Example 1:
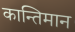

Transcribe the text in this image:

कान्तिमान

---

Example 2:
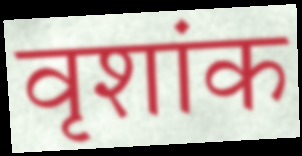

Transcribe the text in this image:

वृशांक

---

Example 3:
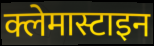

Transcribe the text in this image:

क्लेमास्टाइन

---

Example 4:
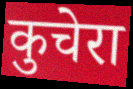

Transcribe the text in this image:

कुचेरा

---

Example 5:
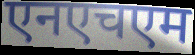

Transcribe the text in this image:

एनएचएम